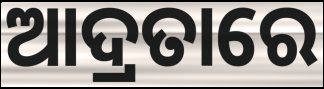
ଆଦ୍ରତାରେ